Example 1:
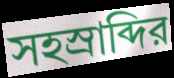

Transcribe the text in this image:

সহস্রাব্দির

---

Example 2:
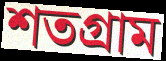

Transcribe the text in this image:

শতগ্রাম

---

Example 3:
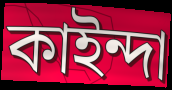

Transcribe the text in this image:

কাইন্দা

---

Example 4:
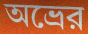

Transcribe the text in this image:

অভ্রের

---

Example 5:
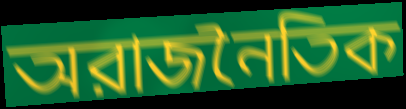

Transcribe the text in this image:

অরাজনৈতিক